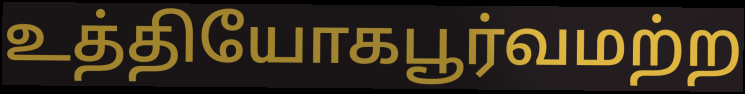
உத்தியோகபூர்வமற்ற